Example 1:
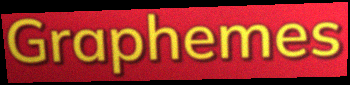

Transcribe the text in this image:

Graphemes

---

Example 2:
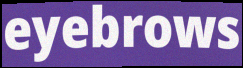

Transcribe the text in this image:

eyebrows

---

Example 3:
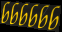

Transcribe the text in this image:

bbbbbb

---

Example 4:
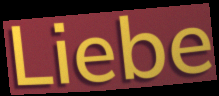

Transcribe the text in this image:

Liebe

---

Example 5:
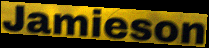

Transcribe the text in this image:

Jamieson